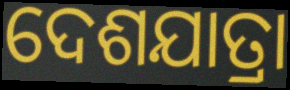
ଦେଶଯାତ୍ରା